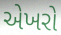
એખરો